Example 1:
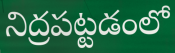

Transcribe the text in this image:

నిద్రపట్టడంలో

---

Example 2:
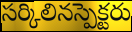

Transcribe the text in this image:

సర్కిలినస్పెక్టరు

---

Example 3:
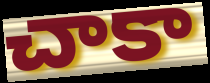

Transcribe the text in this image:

చాకా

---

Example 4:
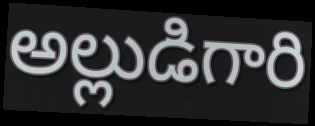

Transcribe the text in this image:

అల్లుడిగారి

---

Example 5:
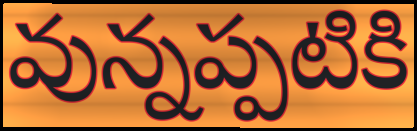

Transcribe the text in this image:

వున్నప్పటికి